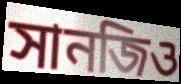
সানজিও